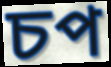
চপ